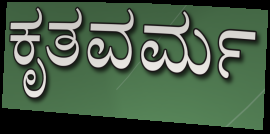
ಕೃತವರ್ಮ